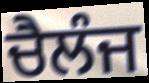
ਚੈਲੰਜ